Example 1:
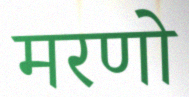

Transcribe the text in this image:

मरणो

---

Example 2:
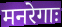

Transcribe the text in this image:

मनरेगाः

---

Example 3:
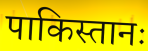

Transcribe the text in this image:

पाकिस्तानः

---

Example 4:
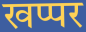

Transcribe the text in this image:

खप्पर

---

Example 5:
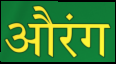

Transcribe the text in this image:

औरंग